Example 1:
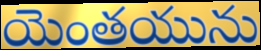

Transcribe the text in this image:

యెంతయును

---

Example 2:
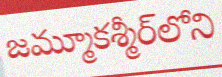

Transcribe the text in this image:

జమ్మూకశ్మీర్‌లోని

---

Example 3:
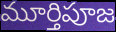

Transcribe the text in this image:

మూర్తిపూజ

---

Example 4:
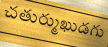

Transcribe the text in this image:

చతుర్ముఖుడగు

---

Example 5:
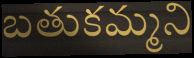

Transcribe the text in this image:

బతుకమ్మని